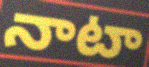
నాటా